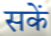
सकें